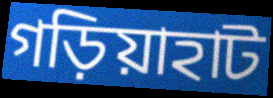
গড়িয়াহাট